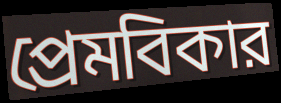
প্রেমবিকার